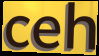
ceh